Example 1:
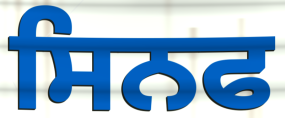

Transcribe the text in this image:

ਸਿਨਫ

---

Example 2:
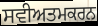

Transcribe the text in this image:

ਸਵੀਅਤਮਕਰਨ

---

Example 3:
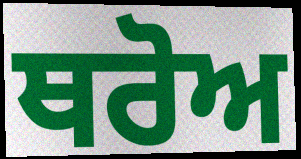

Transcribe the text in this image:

ਥਰੋਅ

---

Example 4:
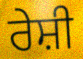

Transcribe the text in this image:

ਰੇਸ਼ੀ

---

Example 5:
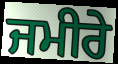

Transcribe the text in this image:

ਜਮੀਰੇ